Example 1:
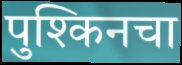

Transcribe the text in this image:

पुश्किनचा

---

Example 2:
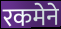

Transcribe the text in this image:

रकमेने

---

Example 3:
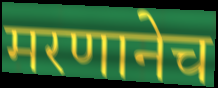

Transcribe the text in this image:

मरणानेच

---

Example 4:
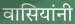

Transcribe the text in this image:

वासियांनी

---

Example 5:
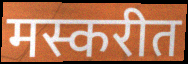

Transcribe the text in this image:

मस्करीत